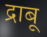
द्राबू